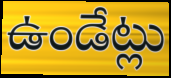
ఉండేట్లు